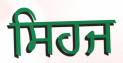
ਸਿਹਜ